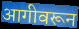
आगीवरून